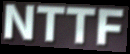
NTTF